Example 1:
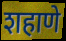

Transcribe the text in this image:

शहाणे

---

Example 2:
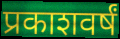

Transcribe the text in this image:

प्रकाशवर्षं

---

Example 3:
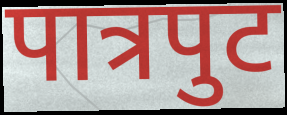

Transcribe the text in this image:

पात्रपुट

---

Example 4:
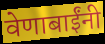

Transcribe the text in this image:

वेणाबाईंनी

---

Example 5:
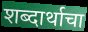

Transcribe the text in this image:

शब्दार्थाचा